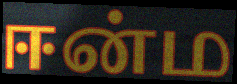
ஈன்ம